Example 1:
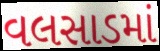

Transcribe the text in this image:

વલસાડમાં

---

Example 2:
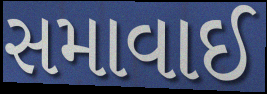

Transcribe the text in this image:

સમાવાઈ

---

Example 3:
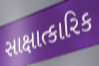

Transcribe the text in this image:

સાક્ષાત્કારિક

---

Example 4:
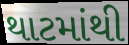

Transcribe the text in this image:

થાટમાંથી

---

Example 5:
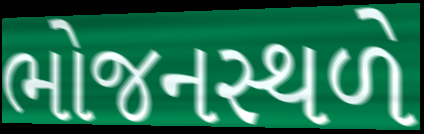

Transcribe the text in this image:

ભોજનસ્થળે